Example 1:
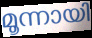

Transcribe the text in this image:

മൂന്നായി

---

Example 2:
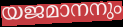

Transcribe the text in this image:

യജമാനനും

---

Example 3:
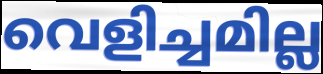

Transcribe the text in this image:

വെളിച്ചമില്ല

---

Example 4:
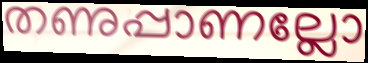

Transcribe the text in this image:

തണുപ്പാണല്ലോ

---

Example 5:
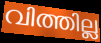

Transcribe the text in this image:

വിത്തില്ല